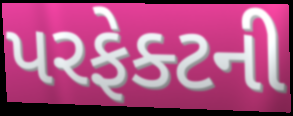
પરફેક્ટની